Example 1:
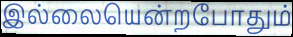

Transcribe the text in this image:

இல்லையென்றபோதும்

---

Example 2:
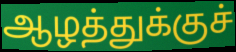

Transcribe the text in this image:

ஆழத்துக்குச்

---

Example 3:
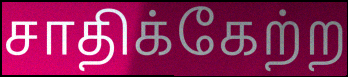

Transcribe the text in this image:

சாதிக்கேற்ற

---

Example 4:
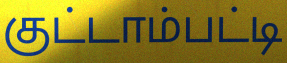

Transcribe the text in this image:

குட்டாம்பட்டி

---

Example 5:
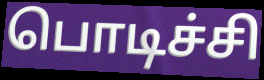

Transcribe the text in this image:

பொடிச்சி